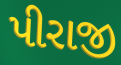
પીરાજી